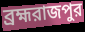
ব্রহ্মরাজপুর